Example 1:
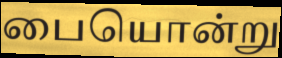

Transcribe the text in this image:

பையொன்று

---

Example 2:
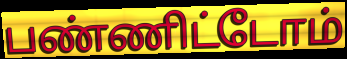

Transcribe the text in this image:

பண்ணிட்டோம்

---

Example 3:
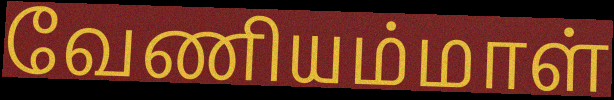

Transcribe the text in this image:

வேணியம்மாள்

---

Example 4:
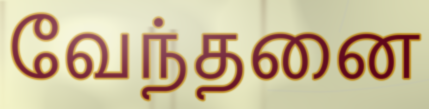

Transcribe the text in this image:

வேந்தனை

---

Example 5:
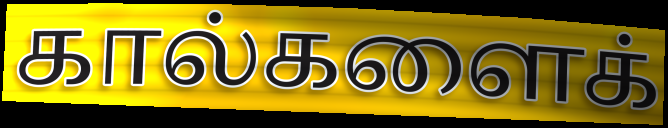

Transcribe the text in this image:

கால்களைக்